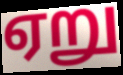
ஏறு